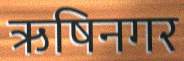
ऋषिनगर